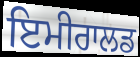
ਇਮੀਰਾਲਡ